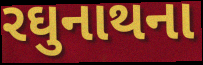
રઘુનાથના